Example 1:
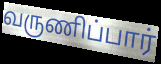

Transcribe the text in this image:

வருணிப்பார்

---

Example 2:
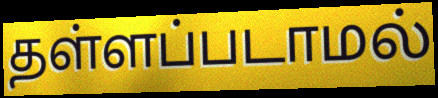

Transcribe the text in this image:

தள்ளப்படாமல்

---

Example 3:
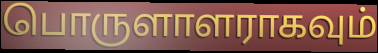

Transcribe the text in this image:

பொருளாளராகவும்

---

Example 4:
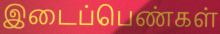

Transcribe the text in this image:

இடைப்பெண்கள்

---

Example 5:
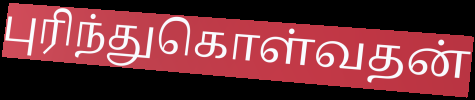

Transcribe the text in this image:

புரிந்துகொள்வதன்